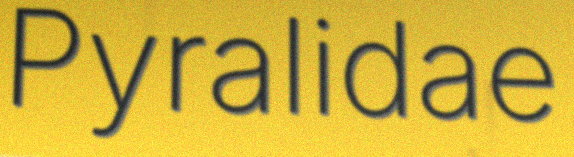
Pyralidae